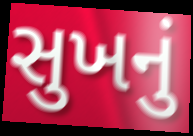
સુખનું